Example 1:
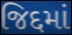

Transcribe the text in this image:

જિદ્દમાં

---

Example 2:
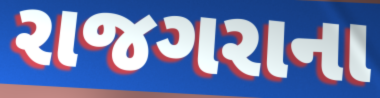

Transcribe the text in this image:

રાજગરાના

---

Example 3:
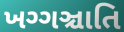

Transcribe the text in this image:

ખગ્ગઞ્ચાતિ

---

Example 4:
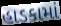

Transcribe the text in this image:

હાડકામાં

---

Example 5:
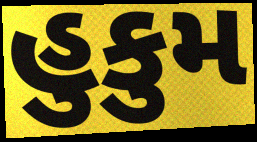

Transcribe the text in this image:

હુકુમ